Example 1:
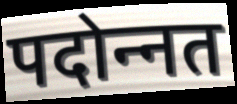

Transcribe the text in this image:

पदोन्नत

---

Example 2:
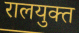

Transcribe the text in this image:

रालयुक्त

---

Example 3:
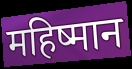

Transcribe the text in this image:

महिष्मान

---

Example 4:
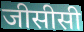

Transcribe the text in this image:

जीसीसी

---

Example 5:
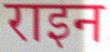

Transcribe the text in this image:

राइन